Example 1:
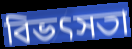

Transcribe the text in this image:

বিভৎসতা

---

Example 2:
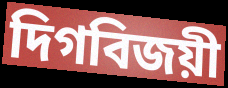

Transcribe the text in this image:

দিগবিজয়ী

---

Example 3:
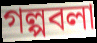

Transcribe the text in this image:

গল্পবলা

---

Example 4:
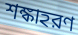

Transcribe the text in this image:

শঙ্কাহরণ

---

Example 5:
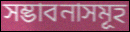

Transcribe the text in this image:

সম্ভাবনাসমূহ